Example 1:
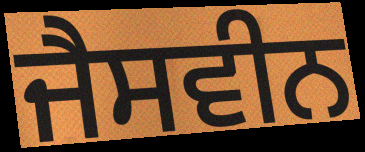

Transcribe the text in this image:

ਜੈਸਵੀਨ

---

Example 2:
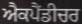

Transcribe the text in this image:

ਐਕਪੈਂਡੀਚਰ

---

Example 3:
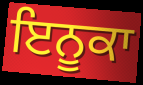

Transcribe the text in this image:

ਇਨੂਕਾ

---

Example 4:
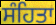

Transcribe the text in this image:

ਸੰਹਿਤਾ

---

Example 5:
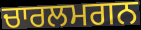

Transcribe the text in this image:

ਚਾਰਲਮਗਨ